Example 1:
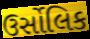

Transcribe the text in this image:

ઉર્સોલિક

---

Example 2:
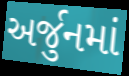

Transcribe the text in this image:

અર્જુનમાં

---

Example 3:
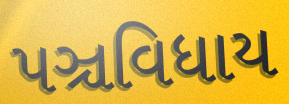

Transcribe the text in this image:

પઞ્ચવિધાય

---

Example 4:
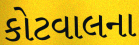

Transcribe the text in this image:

કોટવાલના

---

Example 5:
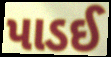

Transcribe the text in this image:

પાડઈ